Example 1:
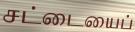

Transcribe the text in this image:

சட்டையைப்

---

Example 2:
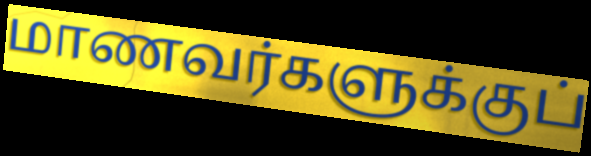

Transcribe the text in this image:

மாணவர்களுக்குப்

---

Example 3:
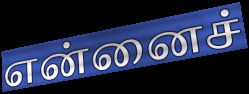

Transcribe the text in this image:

என்னைச்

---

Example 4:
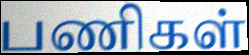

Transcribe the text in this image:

பணிகள்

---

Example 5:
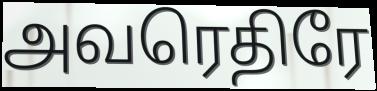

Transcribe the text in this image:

அவரெதிரே